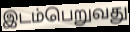
இடம்பெறுவது